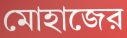
মোহাজের